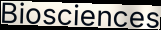
Biosciences